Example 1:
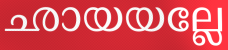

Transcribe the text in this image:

ഛായയല്ലേ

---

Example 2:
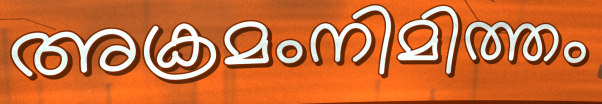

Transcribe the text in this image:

അക്രമംനിമിത്തം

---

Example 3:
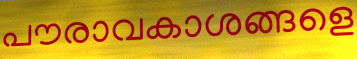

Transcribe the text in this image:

പൗരാവകാശങ്ങളെ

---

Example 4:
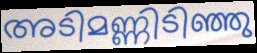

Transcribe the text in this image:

അടിമണ്ണിടിഞ്ഞു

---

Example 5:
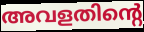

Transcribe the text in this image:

അവളതിന്റെ